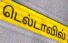
டெல்டாவில்